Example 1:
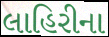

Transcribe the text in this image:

લાહિરીના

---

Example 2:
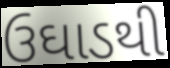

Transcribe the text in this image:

ઉઘાડથી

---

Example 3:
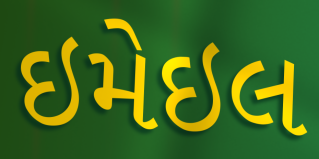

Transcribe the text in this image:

ઇમેઇલ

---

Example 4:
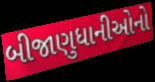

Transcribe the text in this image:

બીજાણુધાનીઓનો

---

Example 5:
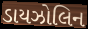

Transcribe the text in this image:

ડાયઝોલિન